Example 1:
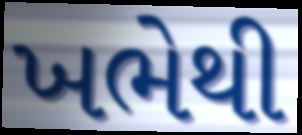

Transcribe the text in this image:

ખભેથી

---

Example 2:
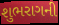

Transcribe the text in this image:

શુભરાગની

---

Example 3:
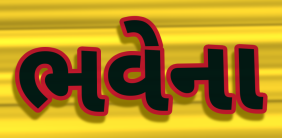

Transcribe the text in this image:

ભવેના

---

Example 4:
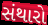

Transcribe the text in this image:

સંથારો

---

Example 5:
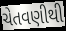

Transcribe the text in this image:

ચેતવણીથી